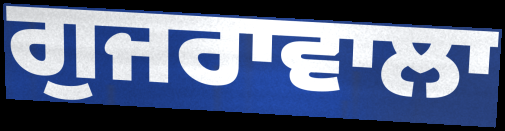
ਗੁਜਰਾਵਾਲਾ